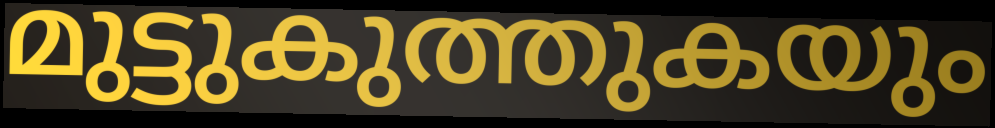
മുട്ടുകുത്തുകയും